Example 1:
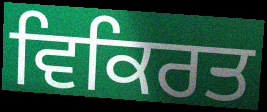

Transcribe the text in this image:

ਵਿਕਿਰਤ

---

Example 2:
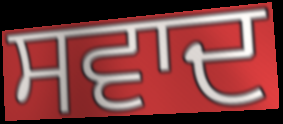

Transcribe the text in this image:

ਸਵਾਦ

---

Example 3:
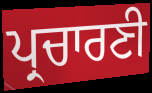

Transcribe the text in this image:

ਪ੍ਰਚਾਰਣੀ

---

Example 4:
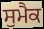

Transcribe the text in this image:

ਸੁਮੈਕ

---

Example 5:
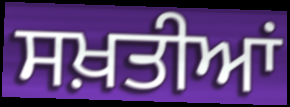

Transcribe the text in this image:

ਸਖ਼ਤੀਆਂ